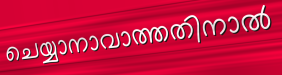
ചെയ്യാനാവാത്തതിനാൽ